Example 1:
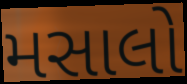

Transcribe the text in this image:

મસાલો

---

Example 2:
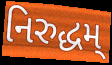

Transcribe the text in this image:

નિરુદ્ધમ્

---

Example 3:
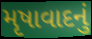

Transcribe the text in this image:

મૃષાવાદનું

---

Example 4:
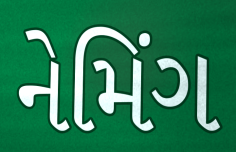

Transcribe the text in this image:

નેમિંગ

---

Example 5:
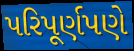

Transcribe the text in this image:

પરિપૂર્ણપણે